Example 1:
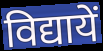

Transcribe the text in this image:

विद्यायें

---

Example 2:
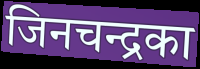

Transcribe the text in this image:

जिनचन्द्रका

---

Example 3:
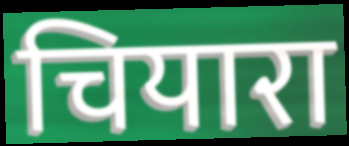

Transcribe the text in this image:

चियारा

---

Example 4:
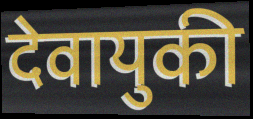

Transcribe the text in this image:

देवायुकी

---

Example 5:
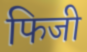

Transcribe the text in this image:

फिजी